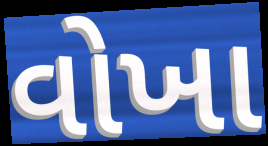
વોખા